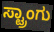
ಸ್ಟ್ರಾಂಗು